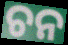
ଚନ